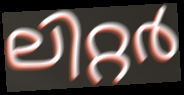
ലിറ്റർ